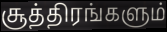
சூத்திரங்களும்